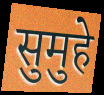
सुमुहे